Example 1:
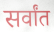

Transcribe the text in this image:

सर्वांत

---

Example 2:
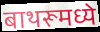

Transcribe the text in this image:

बाथरूमध्ये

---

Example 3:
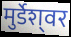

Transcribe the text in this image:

मुर्डेश्वर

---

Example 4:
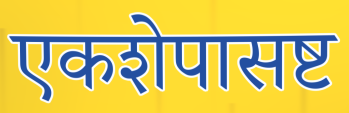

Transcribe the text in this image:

एकशेपासष्ट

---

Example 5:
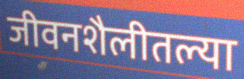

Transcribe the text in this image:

जीवनशैलीतल्या